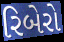
રિબેરો